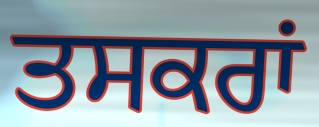
ਤਸਕਰਾਂ